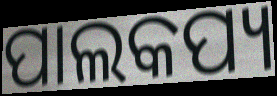
ପାଲକପ୍ୟ